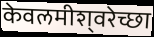
केवलमीश्वरेच्छा